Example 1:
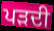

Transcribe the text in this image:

ਪੜਦੀ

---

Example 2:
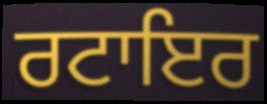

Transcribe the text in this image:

ਰਟਾਇਰ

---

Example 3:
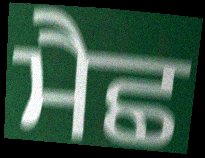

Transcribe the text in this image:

ਮੈਛ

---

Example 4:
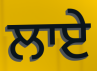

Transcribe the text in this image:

ਲਾਏ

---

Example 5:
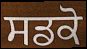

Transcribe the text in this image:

ਸਡਕੋ